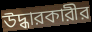
উদ্ধারকারীর